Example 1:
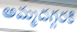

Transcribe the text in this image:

అమ్మదగ్గరకి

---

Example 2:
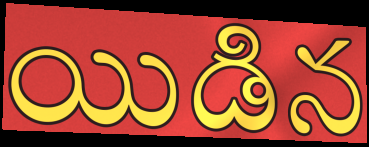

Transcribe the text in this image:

యిడిన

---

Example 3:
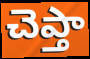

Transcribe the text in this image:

చెప్తా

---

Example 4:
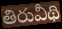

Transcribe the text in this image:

తిరువీథి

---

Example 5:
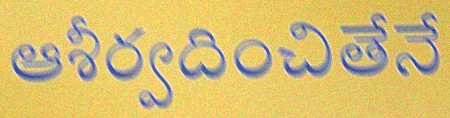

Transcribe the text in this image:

ఆశీర్వదించితేనే